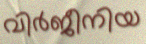
വിർജീനിയ